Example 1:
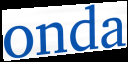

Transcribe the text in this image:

onda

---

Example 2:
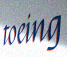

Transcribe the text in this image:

toeing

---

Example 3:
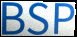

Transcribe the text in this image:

BSP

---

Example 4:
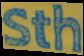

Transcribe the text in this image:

Sth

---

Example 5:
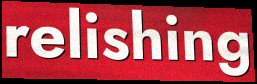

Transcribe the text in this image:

relishing